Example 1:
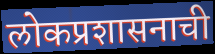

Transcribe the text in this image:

लोकप्रशासनाची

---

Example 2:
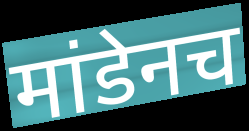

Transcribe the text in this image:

मांडेनच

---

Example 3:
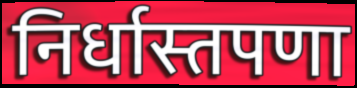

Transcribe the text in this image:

निर्धास्तपणा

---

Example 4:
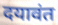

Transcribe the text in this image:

दयावंत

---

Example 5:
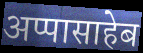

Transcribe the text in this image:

अप्पासाहेब